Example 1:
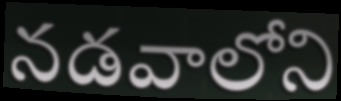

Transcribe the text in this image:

నడవాలోని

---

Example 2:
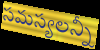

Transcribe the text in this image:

సమస్యలన్నీ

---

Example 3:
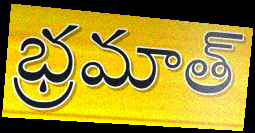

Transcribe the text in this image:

భ్రమాత్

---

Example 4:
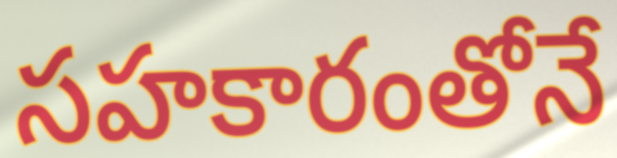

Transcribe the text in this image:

సహకారంతోనే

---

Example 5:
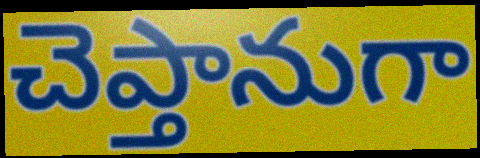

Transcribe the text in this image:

చెప్తానుగా